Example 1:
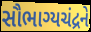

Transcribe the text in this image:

સૌભાગ્યચંદ્રને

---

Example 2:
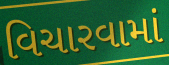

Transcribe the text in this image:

વિચારવામાં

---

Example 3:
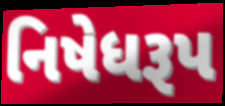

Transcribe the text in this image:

નિષેધરૂપ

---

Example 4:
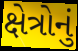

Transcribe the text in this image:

ક્ષેત્રોનું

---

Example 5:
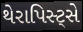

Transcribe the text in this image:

થેરાપિસ્ટ્સે